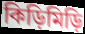
কিড়িমিড়ি